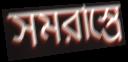
সমরাস্ত্রে